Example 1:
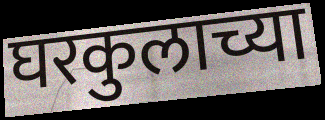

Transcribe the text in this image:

घरकुलाच्या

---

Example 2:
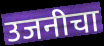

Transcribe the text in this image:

उजनीचा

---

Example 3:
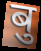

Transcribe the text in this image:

बु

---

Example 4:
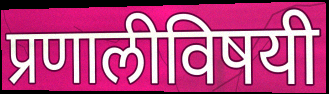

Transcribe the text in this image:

प्रणालीविषयी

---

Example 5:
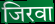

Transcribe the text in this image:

जिरवा